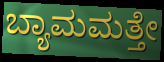
ಬ್ಯಾಮಮತ್ತೇ